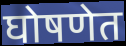
घोषणेत